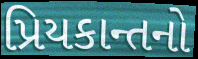
પ્રિયકાન્તનો